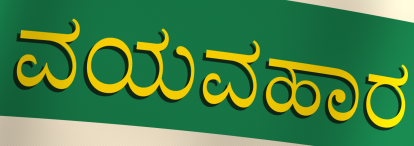
ವಯವಹಾರ